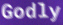
Godly